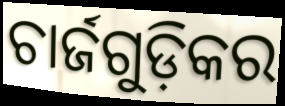
ଚାର୍ଜଗୁଡ଼ିକର